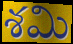
శమి